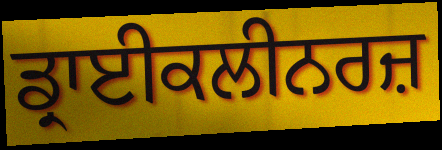
ਡ੍ਰਾਈਕਲੀਨਰਜ਼